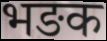
भङक